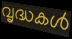
വൃദ്ധകൾ